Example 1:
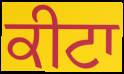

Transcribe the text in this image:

ਕੀਟਾ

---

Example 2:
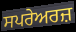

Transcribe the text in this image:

ਸਪਰੇਅਰਜ਼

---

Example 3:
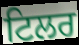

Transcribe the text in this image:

ਟਿਲਰ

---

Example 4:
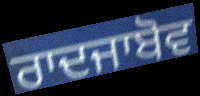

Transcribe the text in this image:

ਰਾਦਜਾਬੋਵ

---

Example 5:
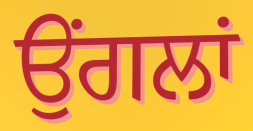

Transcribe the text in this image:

ਉਂਗਲਾਂ